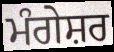
ਮੰਗੇਸ਼ਰ